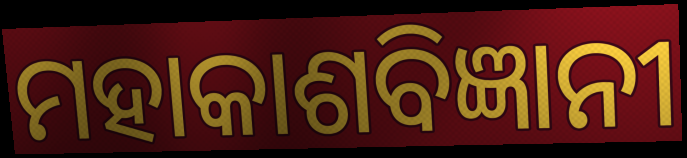
ମହାକାଶବିଜ୍ଞାନୀ